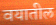
वयातील